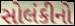
સોલંકીનો